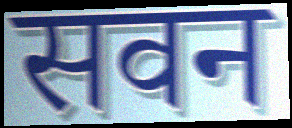
सवन